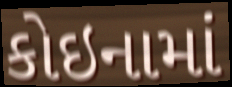
કોઇનામાં